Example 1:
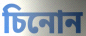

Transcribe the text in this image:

চিনোন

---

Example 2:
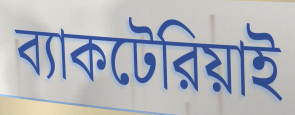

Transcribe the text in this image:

ব্যাকটেরিয়াই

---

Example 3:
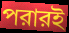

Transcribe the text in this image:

পরারই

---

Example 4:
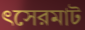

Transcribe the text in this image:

ৎসেরমাট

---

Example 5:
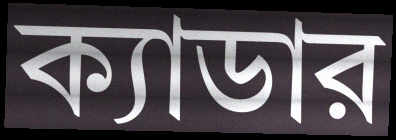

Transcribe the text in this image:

ক্যাডার